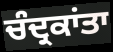
ਚੰਦ੍ਰਕਾਂਤਾ